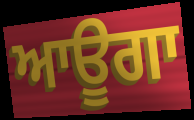
ਆਊਗਾ